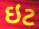
ઇટ